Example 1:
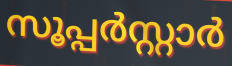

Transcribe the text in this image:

സൂപ്പർസ്റ്റാർ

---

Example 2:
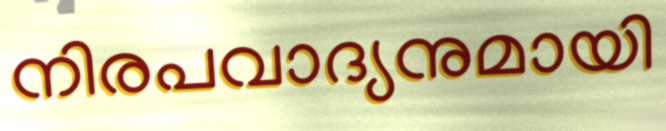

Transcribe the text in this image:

നിരപവാദ്യനുമായി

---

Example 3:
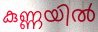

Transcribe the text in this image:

കുണ്ണയിൽ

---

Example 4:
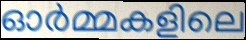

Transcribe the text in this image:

ഓർമ്മകളിലെ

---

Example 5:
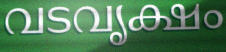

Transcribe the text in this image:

വടവൃക്ഷം